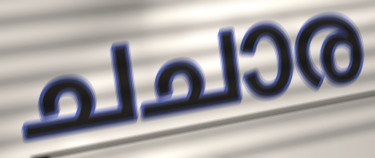
ചചാര